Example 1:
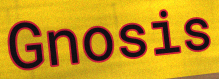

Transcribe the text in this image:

Gnosis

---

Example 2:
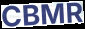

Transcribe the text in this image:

CBMR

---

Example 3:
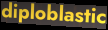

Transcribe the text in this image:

diploblastic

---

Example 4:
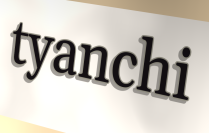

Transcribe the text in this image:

tyanchi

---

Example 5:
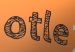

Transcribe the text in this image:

otle